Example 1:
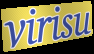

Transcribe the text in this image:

virisu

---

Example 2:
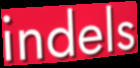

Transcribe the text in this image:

indels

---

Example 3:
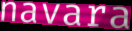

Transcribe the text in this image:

navara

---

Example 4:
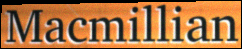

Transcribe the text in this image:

Macmillian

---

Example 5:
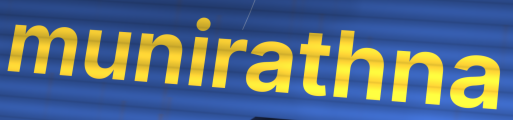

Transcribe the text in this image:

munirathna